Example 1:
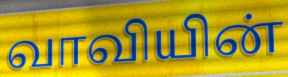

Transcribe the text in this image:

வாவியின்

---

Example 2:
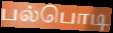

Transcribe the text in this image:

பல்பொடி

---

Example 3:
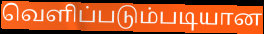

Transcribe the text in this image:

வெளிப்படும்படியான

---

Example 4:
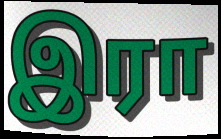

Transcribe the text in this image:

இரா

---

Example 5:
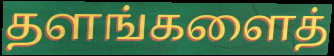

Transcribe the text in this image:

தளங்களைத்